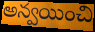
అన్వయించి